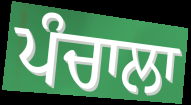
ਪੰਚਾਲਾ